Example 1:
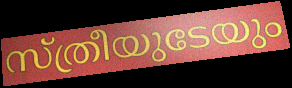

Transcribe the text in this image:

സ്ത്രീയുടേയും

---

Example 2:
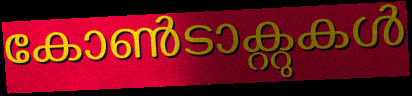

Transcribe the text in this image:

കോൺടാക്റ്റുകൾ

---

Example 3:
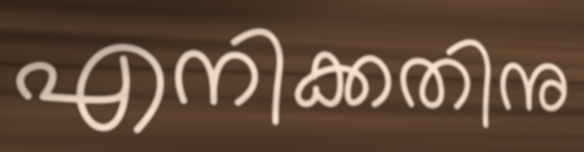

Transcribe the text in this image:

എനിക്കതിനു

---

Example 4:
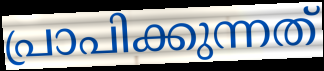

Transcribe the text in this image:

പ്രാപിക്കുന്നത്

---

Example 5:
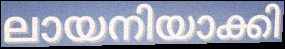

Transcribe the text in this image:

ലായനിയാക്കി